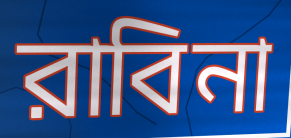
রাবিনা